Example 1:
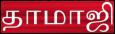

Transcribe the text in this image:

தாமாஜி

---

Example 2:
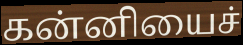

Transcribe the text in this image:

கன்னியைச்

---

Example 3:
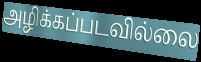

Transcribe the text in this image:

அழிக்கப்படவில்லை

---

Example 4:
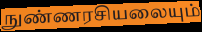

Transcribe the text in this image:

நுண்ணரசியலையும்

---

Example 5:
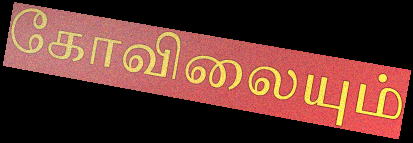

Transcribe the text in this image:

கோவிலையும்